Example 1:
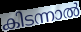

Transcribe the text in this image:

കിടന്നാൽ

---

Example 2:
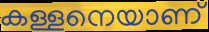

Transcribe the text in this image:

കള്ളനെയാണ്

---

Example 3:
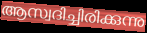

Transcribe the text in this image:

ആസ്വദിച്ചിരിക്കുന്നു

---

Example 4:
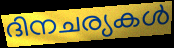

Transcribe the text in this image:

ദിനചര്യകൾ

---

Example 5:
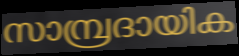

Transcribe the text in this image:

സാമ്പ്രദായിക